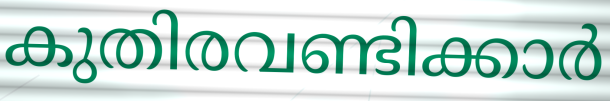
കുതിരവണ്ടിക്കാർ